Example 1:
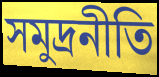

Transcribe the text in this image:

সমুদ্রনীতি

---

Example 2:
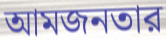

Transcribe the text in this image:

আমজনতার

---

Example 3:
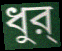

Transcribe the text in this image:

ধুর্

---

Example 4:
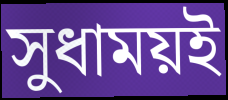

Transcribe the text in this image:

সুধাময়ই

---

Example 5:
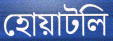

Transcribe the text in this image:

হোয়াটলি